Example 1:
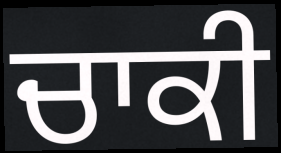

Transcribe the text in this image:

ਚਾਕੀ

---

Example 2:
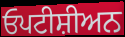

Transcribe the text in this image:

ਓਪਟੀਸ਼ੀਅਨ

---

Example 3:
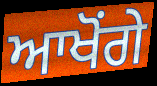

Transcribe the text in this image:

ਆਖੋਂਗੇ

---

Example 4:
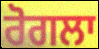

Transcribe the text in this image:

ਰੋਗਲਾ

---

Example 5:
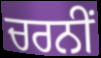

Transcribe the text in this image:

ਚਰਨੀਂ